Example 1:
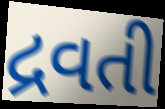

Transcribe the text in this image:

દ્રવતી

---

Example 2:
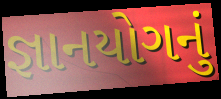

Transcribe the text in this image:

જ્ઞાનયોગનું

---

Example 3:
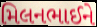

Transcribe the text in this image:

મિલનભાઈને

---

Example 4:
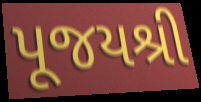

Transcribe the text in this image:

પૂજયશ્રી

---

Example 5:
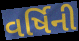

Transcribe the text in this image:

વર્ષિની